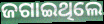
ଜଗାଇଥିଲେ